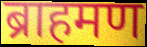
ब्राहमण